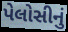
પેલોસીનું